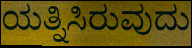
ಯತ್ನಿಸಿರುವುದು